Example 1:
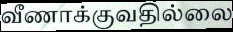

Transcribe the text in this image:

வீணாக்குவதில்லை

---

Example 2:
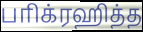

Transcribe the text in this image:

பரிக்ரஹித்த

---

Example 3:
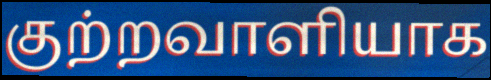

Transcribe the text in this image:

குற்றவாளியாக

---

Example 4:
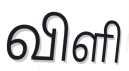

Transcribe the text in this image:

விளி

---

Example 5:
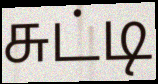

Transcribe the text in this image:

சுட்டி